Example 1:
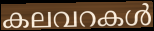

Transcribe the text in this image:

കലവറകൾ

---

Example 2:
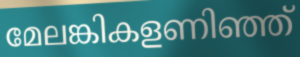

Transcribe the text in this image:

മേലങ്കികളണിഞ്ഞ്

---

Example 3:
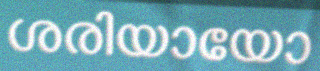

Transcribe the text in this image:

ശരിയായോ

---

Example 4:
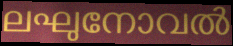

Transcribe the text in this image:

ലഘുനോവൽ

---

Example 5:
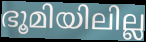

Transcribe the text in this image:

ഭൂമിയിലില്ല